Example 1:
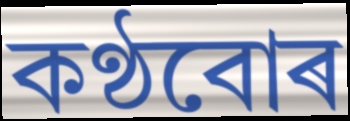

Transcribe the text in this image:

কণ্ঠবোৰ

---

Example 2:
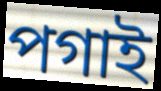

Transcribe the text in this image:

পগাই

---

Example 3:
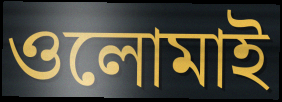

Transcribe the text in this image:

ওলোমাই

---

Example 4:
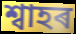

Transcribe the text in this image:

শ্বাহৰ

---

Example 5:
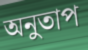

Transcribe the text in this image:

অনুতাপ